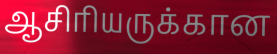
ஆசிரியருக்கான